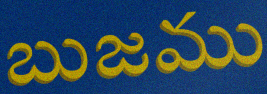
బుజము